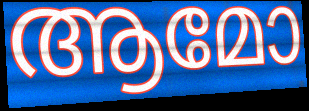
ആമോ